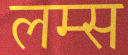
लम्स